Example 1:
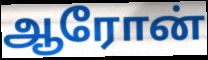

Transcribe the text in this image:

ஆரோன்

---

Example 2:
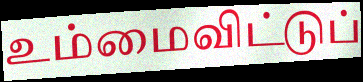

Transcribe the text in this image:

உம்மைவிட்டுப்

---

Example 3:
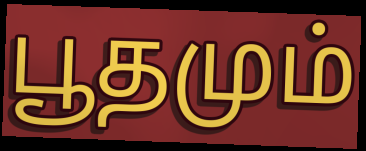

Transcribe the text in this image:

பூதமும்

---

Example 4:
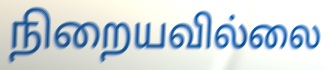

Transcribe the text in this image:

நிறையவில்லை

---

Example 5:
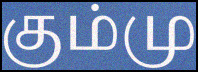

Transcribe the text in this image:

கும்மு